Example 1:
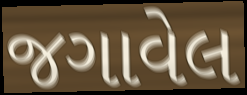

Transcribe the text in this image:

જગાવેલ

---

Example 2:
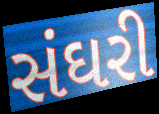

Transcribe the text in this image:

સંઘરી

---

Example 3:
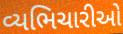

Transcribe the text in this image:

વ્યભિચારીઓ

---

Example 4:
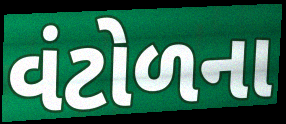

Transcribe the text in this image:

વંટોળના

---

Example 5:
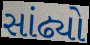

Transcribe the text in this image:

સાંઢ્યો